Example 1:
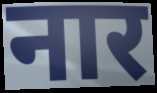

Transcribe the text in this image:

नार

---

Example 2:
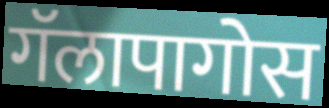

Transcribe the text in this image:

गॅलापागोस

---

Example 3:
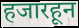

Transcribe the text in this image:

हजारहून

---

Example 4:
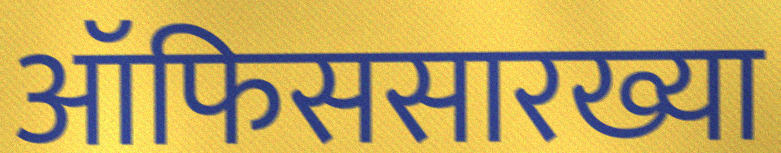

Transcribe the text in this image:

ऑफिससारख्या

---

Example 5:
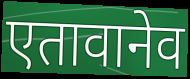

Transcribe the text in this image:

एतावानेव